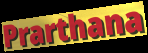
Prarthana